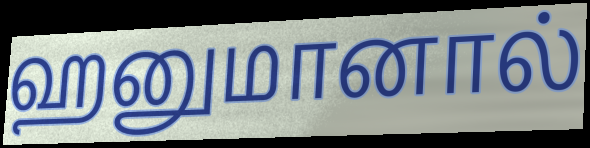
ஹனுமானால்